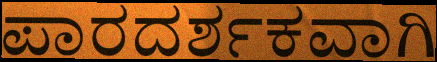
ಪಾರದರ್ಶಕವಾಗಿ